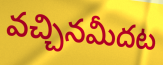
వచ్చినమీదట